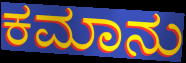
ಕಮಾನು